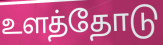
உளத்தோடு